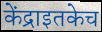
केंद्राइतकेच